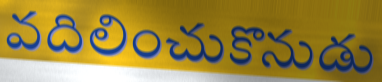
వదిలించుకొనుడు